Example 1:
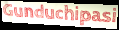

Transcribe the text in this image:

Gunduchipasi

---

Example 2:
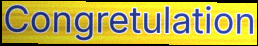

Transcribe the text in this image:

Congretulation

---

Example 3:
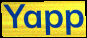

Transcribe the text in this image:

Yapp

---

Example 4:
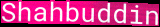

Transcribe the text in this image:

Shahbuddin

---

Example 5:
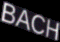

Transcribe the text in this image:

BACH